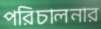
পরিচালনার